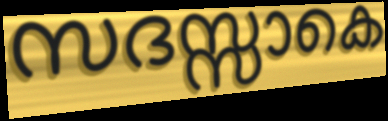
സദസ്സാകെ